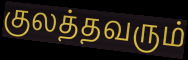
குலத்தவரும்